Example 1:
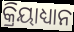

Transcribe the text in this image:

କ୍ରିୟାଧ୍ୟାନ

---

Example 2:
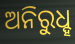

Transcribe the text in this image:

ଅନିରୁଧ୍ହ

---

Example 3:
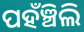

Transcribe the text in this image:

ପହଁଞ୍ଚିଲି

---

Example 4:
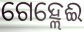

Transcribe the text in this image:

ଗେହ୍ଲେଈ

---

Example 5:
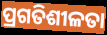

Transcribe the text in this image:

ପ୍ରଗତିଶୀଳତା